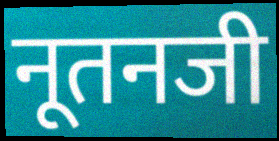
नूतनजी